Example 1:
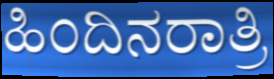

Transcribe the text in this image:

ಹಿಂದಿನರಾತ್ರಿ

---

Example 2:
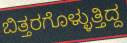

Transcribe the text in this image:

ಬಿತ್ತರಗೊಳ್ಳುತ್ತಿದ್ದ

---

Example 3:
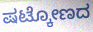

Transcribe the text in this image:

ಷಟ್ಕೋಣದ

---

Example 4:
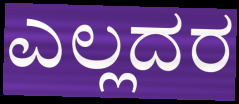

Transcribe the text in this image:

ಎಲ್ಲದರ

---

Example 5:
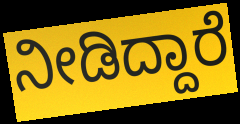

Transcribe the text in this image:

ನೀಡಿದ್ದಾರೆ